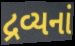
દ્રવ્યનાં